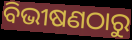
ବିଭୀଷଣଠାରୁ